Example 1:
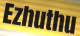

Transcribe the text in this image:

Ezhuthu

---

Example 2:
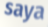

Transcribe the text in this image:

saya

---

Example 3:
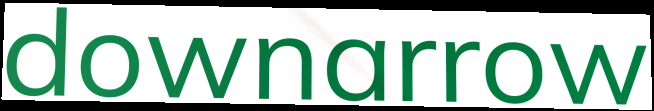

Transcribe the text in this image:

downarrow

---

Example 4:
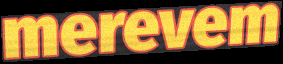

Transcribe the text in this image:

merevem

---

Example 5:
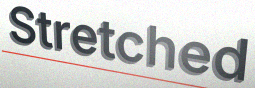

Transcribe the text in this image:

Stretched